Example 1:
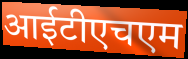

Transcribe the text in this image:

आईटीएचएम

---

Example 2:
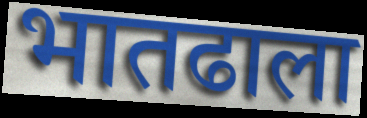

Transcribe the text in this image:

भातढाला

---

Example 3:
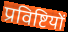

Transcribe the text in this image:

प्रविष्टियों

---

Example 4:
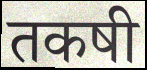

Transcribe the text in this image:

तकषी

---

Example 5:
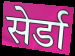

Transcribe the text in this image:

सेर्डा